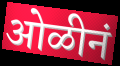
ओळीनं